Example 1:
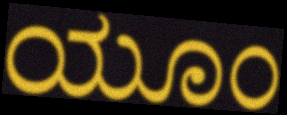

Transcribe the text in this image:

ಯೂಂ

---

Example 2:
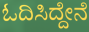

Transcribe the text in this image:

ಓದಿಸಿದ್ದೇನೆ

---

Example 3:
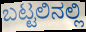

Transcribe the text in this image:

ಬಟ್ಟಲಿನಲ್ಲಿ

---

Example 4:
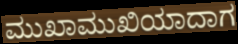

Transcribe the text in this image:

ಮುಖಾಮುಖಿಯಾದಾಗ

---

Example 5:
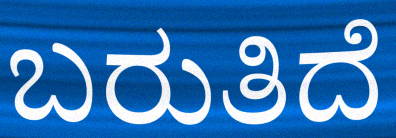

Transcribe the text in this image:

ಬರುತಿದೆ